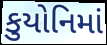
કુયોનિમાં